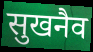
सुखनैव